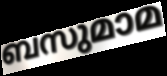
ബസുമാമ